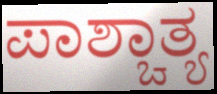
ಪಾಶ್ಚಾತ್ಯ